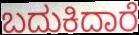
ಬದುಕಿದಾರೆ